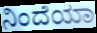
ನಿಂದೆಯಾ